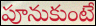
పూనుకుంటే